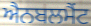
ਐਨਬਲਮੈਂਟ